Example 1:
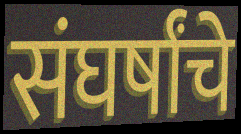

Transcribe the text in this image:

संघर्षांचे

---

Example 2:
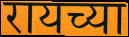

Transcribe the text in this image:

रायच्या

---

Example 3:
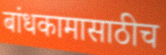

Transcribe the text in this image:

बांधकामासाठीच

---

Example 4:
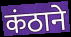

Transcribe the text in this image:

कंठाने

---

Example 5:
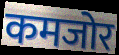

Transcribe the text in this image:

कमजोर